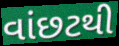
વાંછટથી